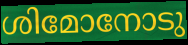
ശിമോനോടു